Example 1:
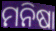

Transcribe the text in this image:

ମନିଷା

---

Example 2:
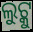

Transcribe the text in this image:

ଲୁଟ୍କୁ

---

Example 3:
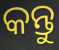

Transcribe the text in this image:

କନ୍ତୁ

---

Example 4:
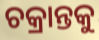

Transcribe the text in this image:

ଚକ୍ରାନ୍ତକୁ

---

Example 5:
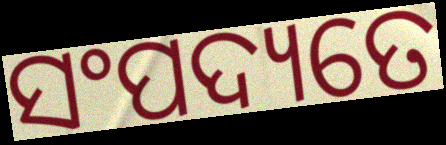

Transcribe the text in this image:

ସଂପଦ୍ୟତେ